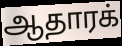
ஆதாரக்